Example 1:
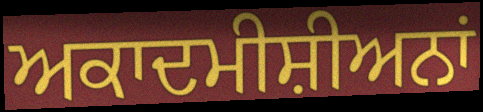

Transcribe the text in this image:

ਅਕਾਦਮੀਸ਼ੀਅਨਾਂ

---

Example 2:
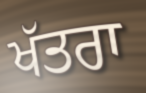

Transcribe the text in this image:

ਖੱਤਰਾ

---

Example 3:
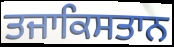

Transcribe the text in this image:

ਤਜਾਕਿਸਤਾਨ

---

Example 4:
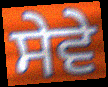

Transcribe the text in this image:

ਸੇਵੇ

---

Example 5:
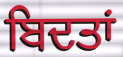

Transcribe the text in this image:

ਬਿਦਤਾਂ